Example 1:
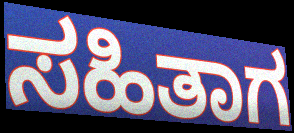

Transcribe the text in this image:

ಸಹಿತಾಗ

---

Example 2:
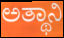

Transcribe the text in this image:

ಅತ್ಥಾನಿ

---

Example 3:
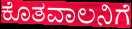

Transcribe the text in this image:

ಕೊತವಾಲನಿಗೆ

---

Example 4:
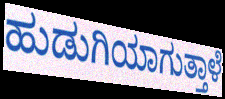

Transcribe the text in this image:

ಹುಡುಗಿಯಾಗುತ್ತಾಳೆ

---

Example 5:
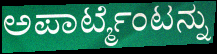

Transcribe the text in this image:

ಅಪಾರ್ಟ್ಮೆಂಟನ್ನು